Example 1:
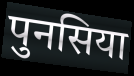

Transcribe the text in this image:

पुनसिया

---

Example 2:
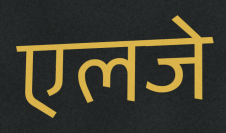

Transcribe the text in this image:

एलजे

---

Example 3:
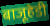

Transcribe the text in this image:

बाजूहेडी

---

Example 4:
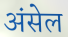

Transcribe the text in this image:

अंसेल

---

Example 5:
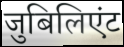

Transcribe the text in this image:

जुबिलिएंट